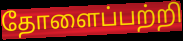
தோளைப்பற்றி